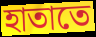
হাতাতে